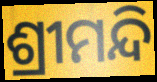
ଶ୍ରୀମନ୍ଦି